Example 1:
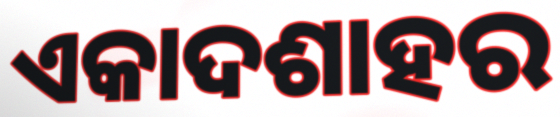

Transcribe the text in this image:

ଏକାଦଶାହର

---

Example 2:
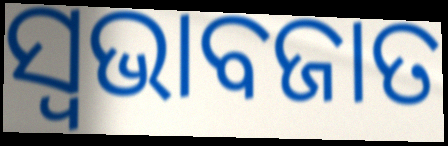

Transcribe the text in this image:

ସ୍ୱଭାବଜାତ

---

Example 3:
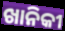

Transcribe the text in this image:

ଖାନିକୀ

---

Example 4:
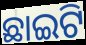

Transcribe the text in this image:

ଛାଇଟି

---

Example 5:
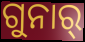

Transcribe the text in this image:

ଗୁନାର୍